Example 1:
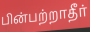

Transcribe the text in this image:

பின்பற்றாதீர்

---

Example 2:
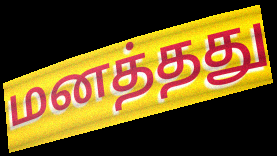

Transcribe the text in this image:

மனத்தது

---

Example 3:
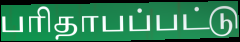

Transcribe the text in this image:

பரிதாபப்பட்டு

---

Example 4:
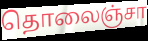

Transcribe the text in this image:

தொலைஞ்சா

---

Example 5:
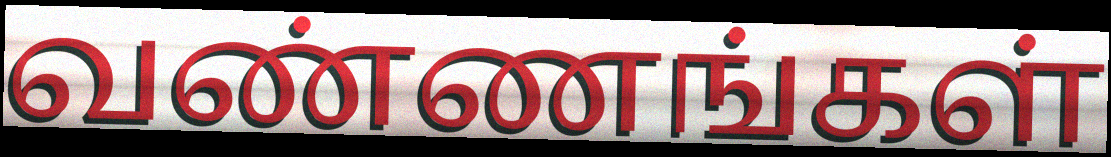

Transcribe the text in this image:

வண்ணங்கள்